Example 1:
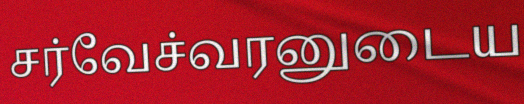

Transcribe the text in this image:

சர்வேச்வரனுடைய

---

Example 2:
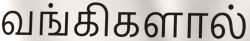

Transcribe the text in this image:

வங்கிகளால்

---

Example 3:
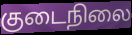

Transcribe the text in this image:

குடைநிலை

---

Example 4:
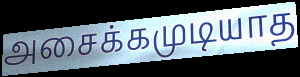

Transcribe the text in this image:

அசைக்கமுடியாத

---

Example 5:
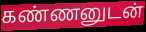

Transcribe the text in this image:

கண்ணனுடன்